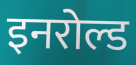
इनरोल्ड